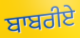
ਬਾਬਰੀਏ